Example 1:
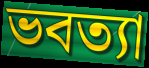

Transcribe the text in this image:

ভবত্যা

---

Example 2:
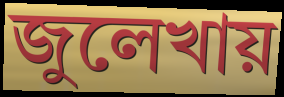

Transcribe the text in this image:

জুলেখায়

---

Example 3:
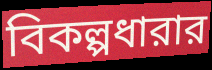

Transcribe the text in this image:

বিকল্পধারার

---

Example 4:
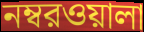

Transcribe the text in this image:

নম্বরওয়ালা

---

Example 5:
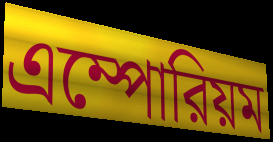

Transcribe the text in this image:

এম্পোরিয়ম